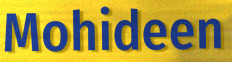
Mohideen